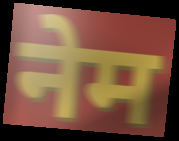
नेम